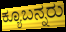
ಕ್ಯೂಬನ್ನರು